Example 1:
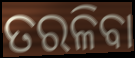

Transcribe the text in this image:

ତରଳିବା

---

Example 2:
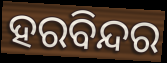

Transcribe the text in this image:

ହରବିନ୍ଦର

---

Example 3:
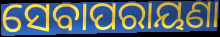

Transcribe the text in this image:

ସେବାପରାୟଣା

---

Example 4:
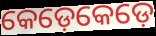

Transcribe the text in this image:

କେଡ଼େକେଡ଼େ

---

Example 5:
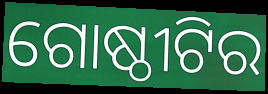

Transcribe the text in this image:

ଗୋଷ୍ଠୀଟିର